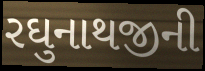
રઘુનાથજીની